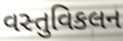
વસ્તુવિકલન